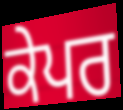
ਕੇਪਰ